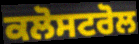
ਕਲੋਸਟਰੋਲ